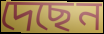
দেছেন